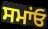
ਸਮਾਂਓ